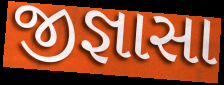
જીજ્ઞાસા